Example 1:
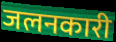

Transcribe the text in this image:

जलनकारी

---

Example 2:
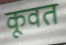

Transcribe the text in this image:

कूवत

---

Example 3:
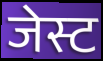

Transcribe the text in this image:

जेस्‍ट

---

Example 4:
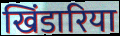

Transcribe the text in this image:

खिंडारिया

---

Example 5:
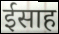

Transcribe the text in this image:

ईसाह